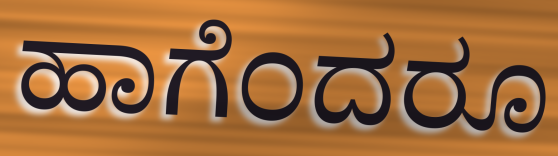
ಹಾಗೆಂದರೂ